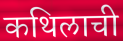
कथिलाची